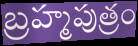
బ్రహ్మపుత్రం